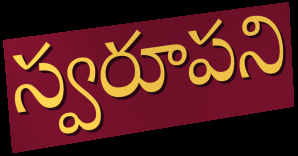
స్వరూపని